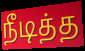
நீடித்த